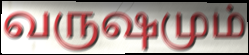
வருஷமும்